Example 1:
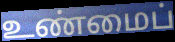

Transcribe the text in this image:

உண்மைப்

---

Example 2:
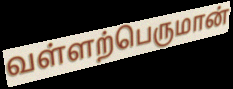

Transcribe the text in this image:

வள்ளற்பெருமான்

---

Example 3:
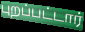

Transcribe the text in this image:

புறப்பட்டார்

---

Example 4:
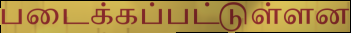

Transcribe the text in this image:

படைக்கப்பட்டுள்ளன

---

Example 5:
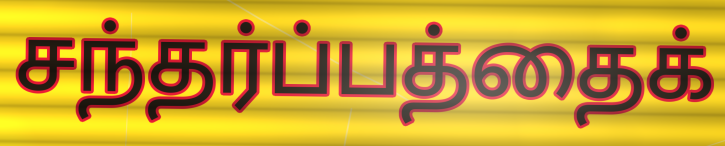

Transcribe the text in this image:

சந்தர்ப்பத்தைக்